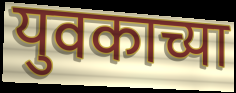
युवकाच्या